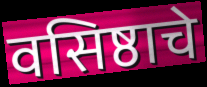
वसिष्ठाचे